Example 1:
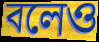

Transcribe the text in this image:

বলেও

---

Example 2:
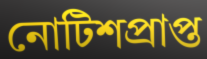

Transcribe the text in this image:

নোটিশপ্রাপ্ত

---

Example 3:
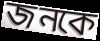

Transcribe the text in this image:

জনকে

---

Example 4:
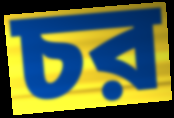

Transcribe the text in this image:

চর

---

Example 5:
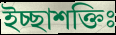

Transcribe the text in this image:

ইচ্ছাশক্তিঃ